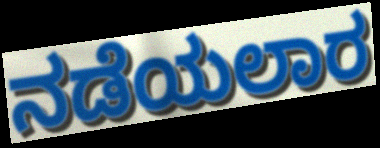
ನಡೆಯಲಾರ